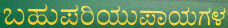
ಬಹುಪರಿಯುಪಾಯಗಳ